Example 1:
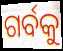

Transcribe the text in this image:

ଗର୍ବକୁ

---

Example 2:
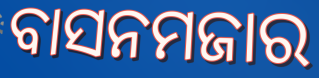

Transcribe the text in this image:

ବାସନମଜାର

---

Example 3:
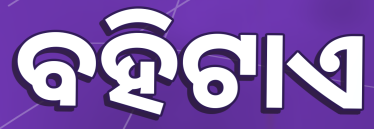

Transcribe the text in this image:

ବହିଟାଏ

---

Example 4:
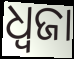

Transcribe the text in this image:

ଧ୍ୱଜା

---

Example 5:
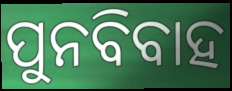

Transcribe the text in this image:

ପୁନବିବାହ